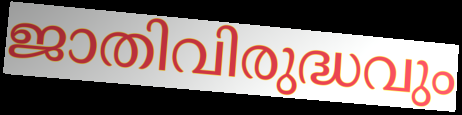
ജാതിവിരുദ്ധവും